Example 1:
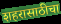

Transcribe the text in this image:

शहरासाठीचा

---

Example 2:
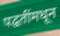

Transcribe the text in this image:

पद्धतींमधून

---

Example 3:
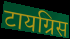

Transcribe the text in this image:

टायग्रिस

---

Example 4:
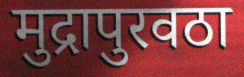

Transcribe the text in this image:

मुद्रापुरवठा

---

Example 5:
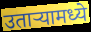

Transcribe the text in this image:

उतार्‍यामध्ये